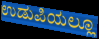
ಉಡುಪಿಯಲ್ಲೂ